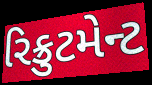
રિક્રુટમેન્ટ